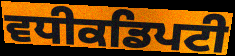
ਵਧੀਕਡਿਪਟੀ